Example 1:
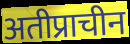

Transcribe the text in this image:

अतीप्राचीन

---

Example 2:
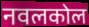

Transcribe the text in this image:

नवलकोल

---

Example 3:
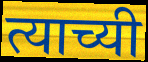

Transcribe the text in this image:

त्याच्यी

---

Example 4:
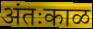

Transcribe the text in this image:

अंतःकाळ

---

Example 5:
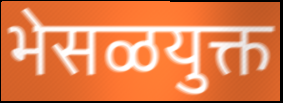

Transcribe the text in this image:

भेसळयुक्त